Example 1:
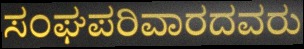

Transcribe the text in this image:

ಸಂಘಪರಿವಾರದವರು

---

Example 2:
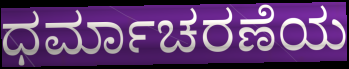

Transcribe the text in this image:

ಧರ್ಮಾಚರಣೆಯ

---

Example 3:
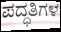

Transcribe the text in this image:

ಪದ್ಧತಿಗಳ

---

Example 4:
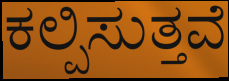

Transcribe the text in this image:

ಕಲ್ಪಿಸುತ್ತವೆ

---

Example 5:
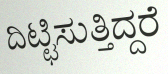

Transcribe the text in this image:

ದಿಟ್ಟಿಸುತ್ತಿದ್ದರೆ